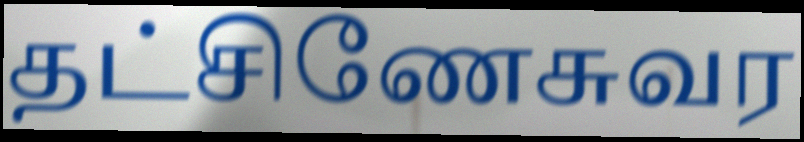
தட்சிணேசுவர